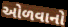
ઓળવાનો